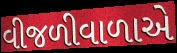
વીજળીવાળાએ